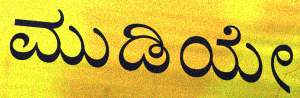
ಮುಡಿಯೇ